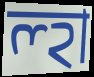
ল্হা